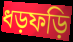
ধড়ফড়ি